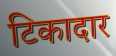
टिकादार